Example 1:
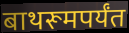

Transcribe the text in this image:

बाथरूमपर्यंत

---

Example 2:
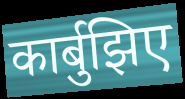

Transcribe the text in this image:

कार्बुझिए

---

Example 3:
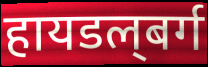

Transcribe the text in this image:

हायडल्‌बर्ग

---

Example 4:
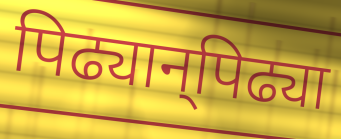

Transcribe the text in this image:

पिढ्यान्‌पिढ्या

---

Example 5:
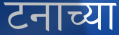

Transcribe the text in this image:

टनाच्या